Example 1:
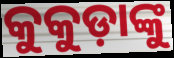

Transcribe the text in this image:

କୁକୁଡ଼ାଙ୍କୁ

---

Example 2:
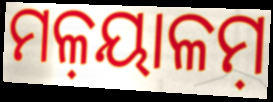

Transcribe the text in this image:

ମଳ଼ୟାଳମ଼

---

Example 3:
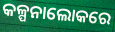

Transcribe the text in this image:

କଳ୍ପନାଲୋକରେ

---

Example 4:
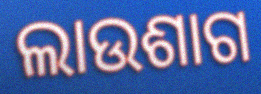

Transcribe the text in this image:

ଲାଉଶାଗ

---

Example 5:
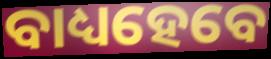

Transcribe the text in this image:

ବାଧ୍ୟହେବେ